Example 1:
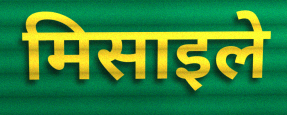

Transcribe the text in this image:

मिसाइले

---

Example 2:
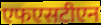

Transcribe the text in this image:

एफएसटीएन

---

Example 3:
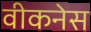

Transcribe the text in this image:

वीकनेस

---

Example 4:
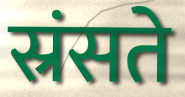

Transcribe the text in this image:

स्रंसते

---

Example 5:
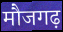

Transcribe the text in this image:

मौजगढ़